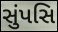
સુંપસિ